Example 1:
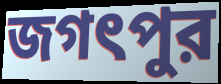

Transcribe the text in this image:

জগৎপুর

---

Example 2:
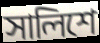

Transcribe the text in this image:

সালিশে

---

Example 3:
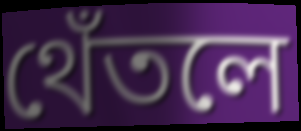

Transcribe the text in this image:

থেঁতলে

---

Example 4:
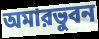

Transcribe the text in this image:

অমারভুবন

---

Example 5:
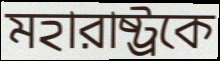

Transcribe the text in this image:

মহারাষ্ট্রকে